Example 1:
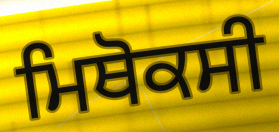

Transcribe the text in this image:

ਮਿਥੋਕਸੀ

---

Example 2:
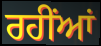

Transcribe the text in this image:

ਰਹੀਂਆਂ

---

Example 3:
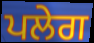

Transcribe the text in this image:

ਪਲੇਗ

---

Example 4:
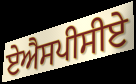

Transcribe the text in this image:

ਏਐਸਪੀਸੀਏ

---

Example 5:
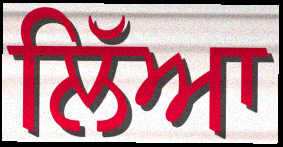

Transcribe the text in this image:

ਲਿੱਆ